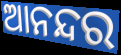
ଆନନ୍ଦର